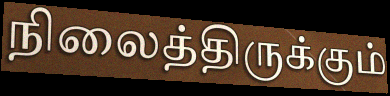
நிலைத்திருக்கும்